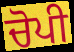
ਚੋਪੀ